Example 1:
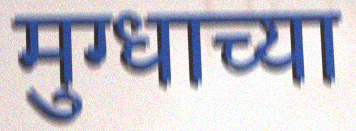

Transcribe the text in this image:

मुग्धाच्या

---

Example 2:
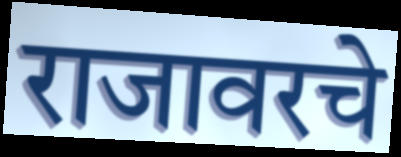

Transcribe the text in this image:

राजावरचे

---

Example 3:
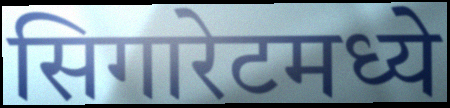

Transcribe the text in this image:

सिगारेटमध्ये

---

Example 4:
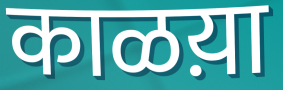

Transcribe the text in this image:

काळय़ा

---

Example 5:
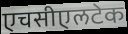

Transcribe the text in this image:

एचसीएलटेक